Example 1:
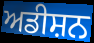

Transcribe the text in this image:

ਅਡੀਸ਼ਨ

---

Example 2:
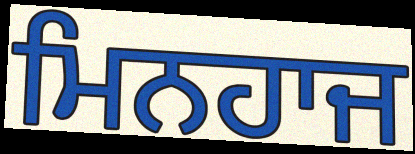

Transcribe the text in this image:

ਮਿਨਹਾਜ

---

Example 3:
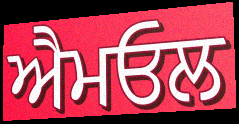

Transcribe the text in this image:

ਐਮਓਲ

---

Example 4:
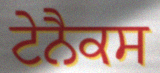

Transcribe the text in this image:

ਟੇਨੈਕਸ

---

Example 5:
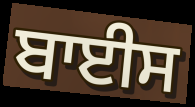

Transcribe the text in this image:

ਬਾਈਸ